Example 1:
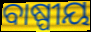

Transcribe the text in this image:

ବାଷ୍ପୀୟ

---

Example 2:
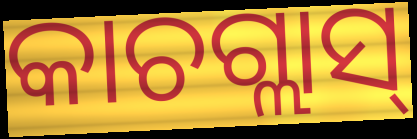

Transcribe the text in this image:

କାଚଗ୍ଲାସ୍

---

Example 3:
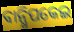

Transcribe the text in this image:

ବାନ୍ଧିପକେଇ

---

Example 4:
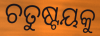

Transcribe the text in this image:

ଚତୁଷ୍ଟୟକୁ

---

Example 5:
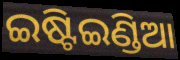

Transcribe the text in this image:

ଇଷ୍ଟିଇଣ୍ଡିଆ